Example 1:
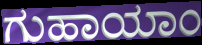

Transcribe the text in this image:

ಗುಹಾಯಾಂ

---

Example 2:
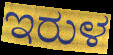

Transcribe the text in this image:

ಇರುಳ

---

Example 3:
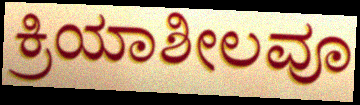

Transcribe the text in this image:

ಕ್ರಿಯಾಶೀಲವೂ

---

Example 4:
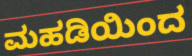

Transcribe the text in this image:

ಮಹಡಿಯಿಂದ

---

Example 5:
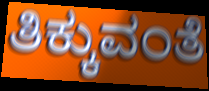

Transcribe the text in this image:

ತಿಕ್ಕುವಂತೆ